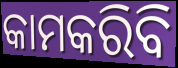
କାମକରିବି